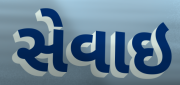
સેવાઇ